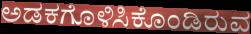
ಅಡಕಗೊಳಿಸಿಕೊಂಡಿರುವ